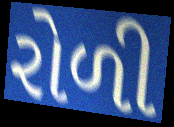
રોળી